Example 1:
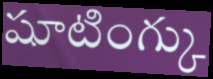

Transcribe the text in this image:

షూటింగ్కు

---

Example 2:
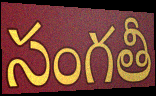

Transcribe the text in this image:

సంగతీ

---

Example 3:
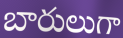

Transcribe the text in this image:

బారులుగా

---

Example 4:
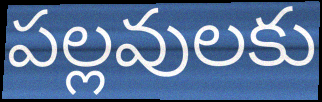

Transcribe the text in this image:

పల్లవులకు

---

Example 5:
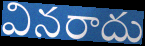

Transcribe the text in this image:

వినరాదు